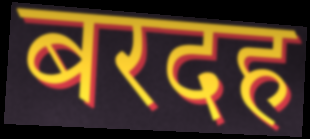
बरदह